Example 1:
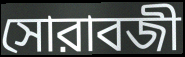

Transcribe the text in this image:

সোরাবজী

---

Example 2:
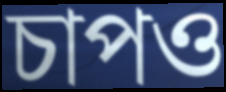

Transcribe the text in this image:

চাপও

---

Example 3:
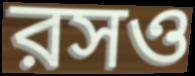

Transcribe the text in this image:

রসও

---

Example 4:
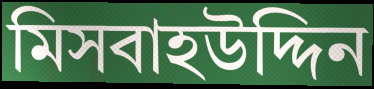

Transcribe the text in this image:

মিসবাহউদ্দিন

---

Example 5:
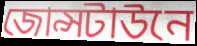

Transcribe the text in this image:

জোন্সটাউনে